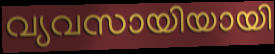
വ്യവസായിയായി